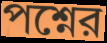
পশ্নের